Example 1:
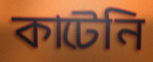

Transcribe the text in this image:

কাটেনি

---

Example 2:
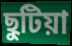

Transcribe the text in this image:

ছুটিয়া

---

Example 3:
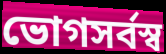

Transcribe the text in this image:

ভোগসর্বস্ব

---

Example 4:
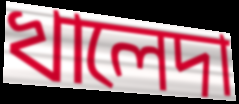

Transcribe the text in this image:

খালেদা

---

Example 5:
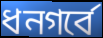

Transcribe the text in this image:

ধনগর্বে